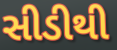
સીડીથી